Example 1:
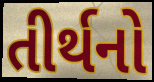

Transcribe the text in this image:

તીર્થનો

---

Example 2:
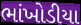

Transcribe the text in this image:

ભાંખોડીયા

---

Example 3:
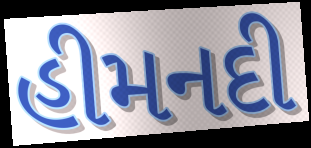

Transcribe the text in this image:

હીમનદી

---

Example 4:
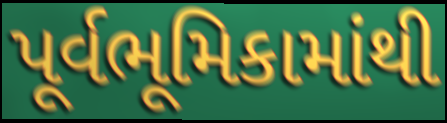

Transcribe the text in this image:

પૂર્વભૂમિકામાંથી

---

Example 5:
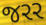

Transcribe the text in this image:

જરર